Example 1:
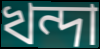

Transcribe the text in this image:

খন্দা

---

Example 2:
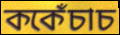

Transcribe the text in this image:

ককেঁচাচ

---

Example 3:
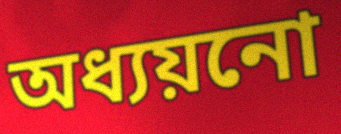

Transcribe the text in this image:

অধ্যয়নো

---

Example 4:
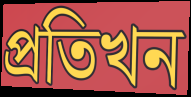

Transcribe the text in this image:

প্ৰতিখন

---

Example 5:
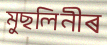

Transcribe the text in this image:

মুছলিনীৰ